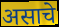
असाचे